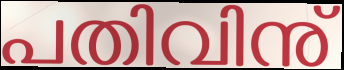
പതിവിനു്